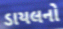
ડાયલનો